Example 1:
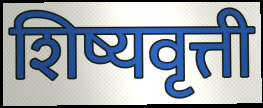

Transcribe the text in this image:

शिष्यवृत्ती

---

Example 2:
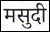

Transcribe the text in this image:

मसुदी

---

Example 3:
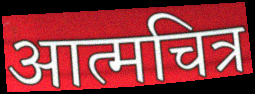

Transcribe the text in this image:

आत्मचित्र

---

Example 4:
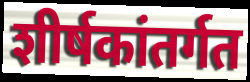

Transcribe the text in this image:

शीर्षकांतर्गत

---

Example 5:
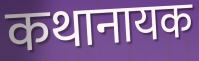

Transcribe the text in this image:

कथानायक